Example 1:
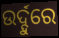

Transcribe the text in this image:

ଉର୍ଦ୍ଦୁରେ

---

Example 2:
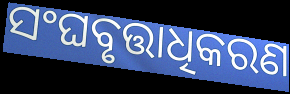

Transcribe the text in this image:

ସଂଘବୃତ୍ତାଧିକରଣ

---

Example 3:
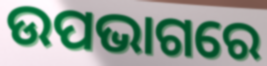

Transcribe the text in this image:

ଉପଭାଗରେ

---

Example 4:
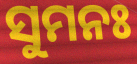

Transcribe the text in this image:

ସୁମନଃ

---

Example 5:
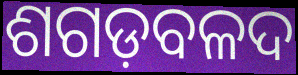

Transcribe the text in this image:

ଶଗଡ଼ବଳଦ